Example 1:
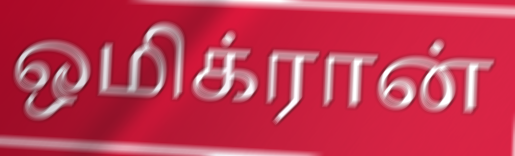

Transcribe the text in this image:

ஒமிக்ரான்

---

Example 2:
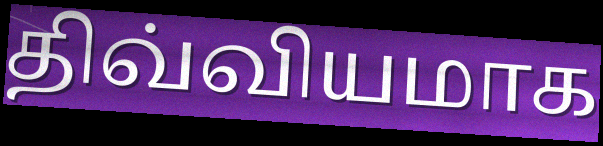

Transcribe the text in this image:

திவ்வியமாக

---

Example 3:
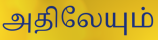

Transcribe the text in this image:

அதிலேயும்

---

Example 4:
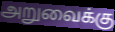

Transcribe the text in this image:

அறுவைக்கு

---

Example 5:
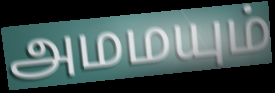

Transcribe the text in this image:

அமமயும்